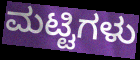
ಮಟ್ಟಿಗಳು